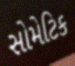
સોમેટિક